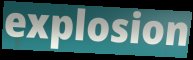
explosion